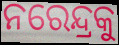
ନରେନ୍ଦ୍ରକୁ